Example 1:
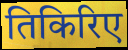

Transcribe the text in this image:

तिकिरिए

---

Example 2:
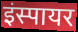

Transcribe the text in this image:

इंस्पायर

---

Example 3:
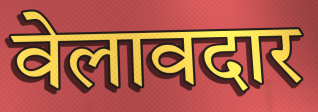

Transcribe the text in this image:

वेलावदार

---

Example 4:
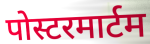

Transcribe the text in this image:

पोस्टरमार्टम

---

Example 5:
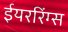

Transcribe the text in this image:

ईयररिंग्स